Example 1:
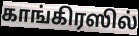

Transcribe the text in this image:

காங்கிரஸில்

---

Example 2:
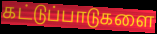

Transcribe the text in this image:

கட்டுப்பாடுகளை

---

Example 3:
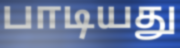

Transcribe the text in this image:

பாடியது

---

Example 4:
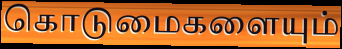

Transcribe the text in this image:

கொடுமைகளையும்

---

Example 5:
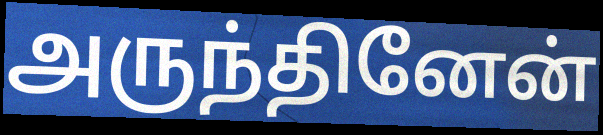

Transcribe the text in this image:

அருந்தினேன்